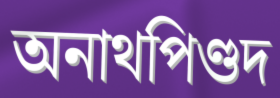
অনাথপিণ্ডদ